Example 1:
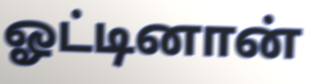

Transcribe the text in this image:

ஓட்டினான்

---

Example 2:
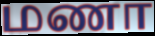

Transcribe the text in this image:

மணா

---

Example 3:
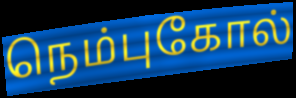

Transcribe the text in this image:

நெம்புகோல்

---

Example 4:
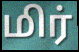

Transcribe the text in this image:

மிர்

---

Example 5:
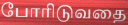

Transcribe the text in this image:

போரிடுவதை